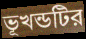
ভূখন্ডটির